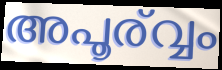
അപൂര്വ്വം